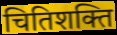
चितिशक्ति